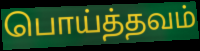
பொய்த்தவம்